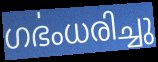
ഗൎഭംധരിച്ചു